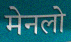
मेनलो